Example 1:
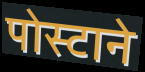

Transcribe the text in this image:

पोस्टाने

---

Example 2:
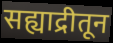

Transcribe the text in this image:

सह्याद्रीतून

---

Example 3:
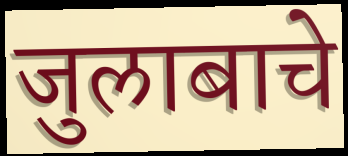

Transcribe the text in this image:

जुलाबाचे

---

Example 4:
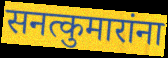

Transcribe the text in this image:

सनत्कुमारांना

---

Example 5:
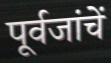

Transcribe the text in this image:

पूर्वजांचें